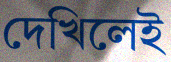
দেখিলেই